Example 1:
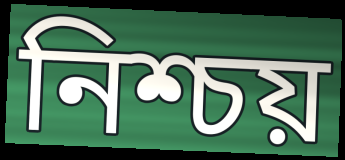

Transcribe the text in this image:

নিশ্চয়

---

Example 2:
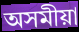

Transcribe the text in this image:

অসমীয়া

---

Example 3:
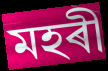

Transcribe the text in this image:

মহৰী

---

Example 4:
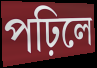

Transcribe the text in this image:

পঢ়িলে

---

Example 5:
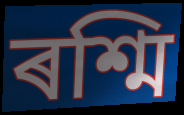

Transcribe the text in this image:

ৰশ্মি